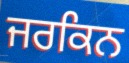
ਜਰਕਿਨ